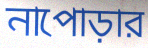
নাপোড়ার